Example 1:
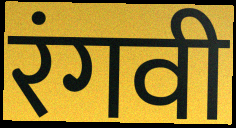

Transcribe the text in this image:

रंगवी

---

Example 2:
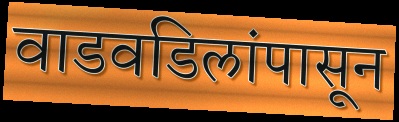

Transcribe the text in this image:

वाडवडिलांपासून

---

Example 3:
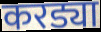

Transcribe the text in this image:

करड्या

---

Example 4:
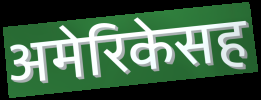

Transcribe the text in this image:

अमेरिकेसह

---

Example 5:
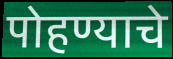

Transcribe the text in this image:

पोहण्याचे